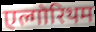
एल्गोरिथम